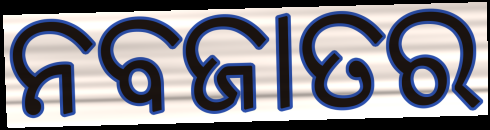
ନବଜାତର